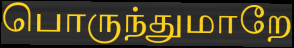
பொருந்துமாறே